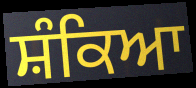
ਸ਼ੰਕਿਆ